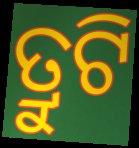
ତ୍ରୁଟି